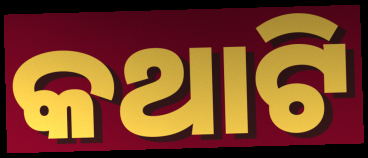
କଥାଟି